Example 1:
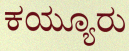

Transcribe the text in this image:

ಕಯ್ಯೂರು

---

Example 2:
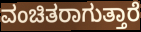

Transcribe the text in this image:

ವಂಚಿತರಾಗುತ್ತಾರೆ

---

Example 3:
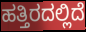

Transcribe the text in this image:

ಹತ್ತಿರದಲ್ಲಿದೆ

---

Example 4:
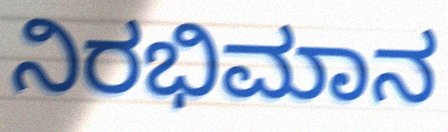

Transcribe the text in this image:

ನಿರಭಿಮಾನ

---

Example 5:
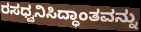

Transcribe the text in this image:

ರಸಧ್ವನಿಸಿದ್ಧಾಂತವನ್ನು